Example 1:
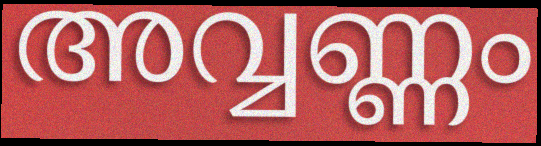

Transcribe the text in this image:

അവ്വണ്ണം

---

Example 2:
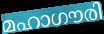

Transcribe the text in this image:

മഹാഗൗരി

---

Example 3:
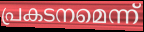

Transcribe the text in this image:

പ്രകടനമെന്ന്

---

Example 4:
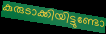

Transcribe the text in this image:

കുരുടാക്കിയിട്ടുണ്ടോ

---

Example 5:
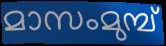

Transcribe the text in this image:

മാസംമുമ്പ്